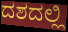
ದಶದಲ್ಲಿ